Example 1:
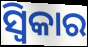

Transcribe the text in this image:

ସ୍ୱିକାର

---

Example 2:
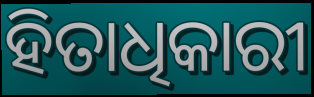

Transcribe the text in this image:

ହିତାଧିକାରୀ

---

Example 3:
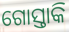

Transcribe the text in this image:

ଗୋସ୍ତାକି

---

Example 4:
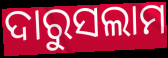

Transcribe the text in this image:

ଦାରୁସଲାମ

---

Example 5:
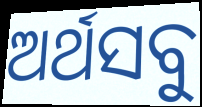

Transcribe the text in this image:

ଅର୍ଥସବୁ